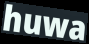
huwa